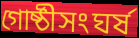
গোষ্ঠীসংঘৰ্ষ